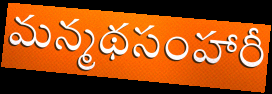
మన్మథసంహారీ